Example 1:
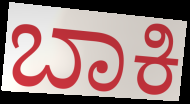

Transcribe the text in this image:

ಬಾಕಿ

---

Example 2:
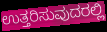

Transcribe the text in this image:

ಉತ್ತರಿಸುವುದರಲ್ಲಿ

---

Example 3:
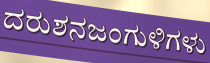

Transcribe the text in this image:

ದರುಶನಜಂಗುಳಿಗಳು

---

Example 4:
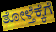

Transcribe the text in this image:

ತೋಳ್ತೆಕ್ಕೆಗೆ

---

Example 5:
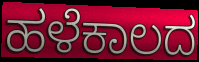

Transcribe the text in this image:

ಹಳೆಕಾಲದ